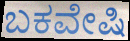
ಬಕವೇಷಿ